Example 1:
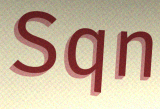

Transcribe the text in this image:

Sqn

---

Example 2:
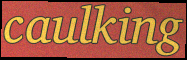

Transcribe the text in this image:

caulking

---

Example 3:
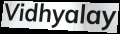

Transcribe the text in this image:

Vidhyalay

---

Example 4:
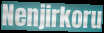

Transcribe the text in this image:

Nenjirkoru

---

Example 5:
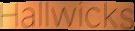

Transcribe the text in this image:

Hallwicks